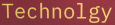
Technolgy